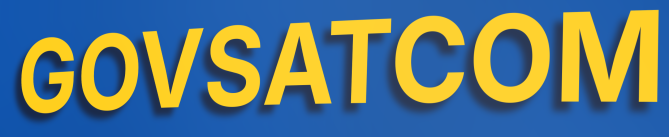
GOVSATCOM